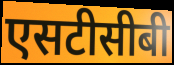
एसटीसीबी